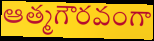
ఆత్మగౌరవంగా